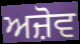
ਅਜ਼ੋਵ